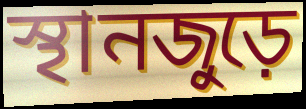
স্থানজুড়ে